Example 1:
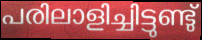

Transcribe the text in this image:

പരിലാളിച്ചിട്ടുണ്ടു്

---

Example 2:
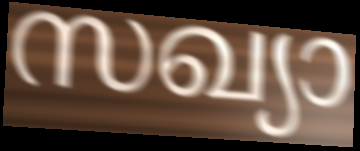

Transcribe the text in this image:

സഖ്യാ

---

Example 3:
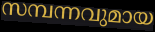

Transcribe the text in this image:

സമ്പന്നവുമായ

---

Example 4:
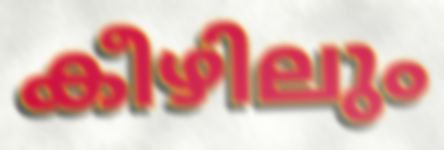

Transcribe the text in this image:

കീഴിലും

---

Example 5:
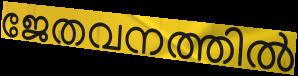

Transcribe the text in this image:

ജേതവനത്തിൽ